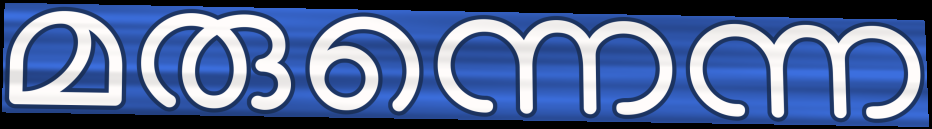
മരുന്നെന്ന